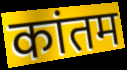
कांतम